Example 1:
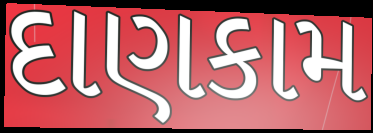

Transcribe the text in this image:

દાણકામ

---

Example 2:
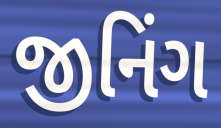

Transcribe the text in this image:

જીનિંગ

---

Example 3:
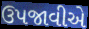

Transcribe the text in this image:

ઉપજાવીએ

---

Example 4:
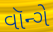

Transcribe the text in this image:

વૉન્ગે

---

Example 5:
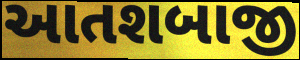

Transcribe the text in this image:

આતશબાજી